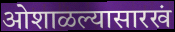
ओशाळल्यासारखं